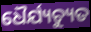
ଧୈର୍ଯ୍ୟଚ୍ୟୁତ